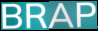
BRAP